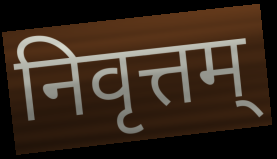
निवृत्तम्